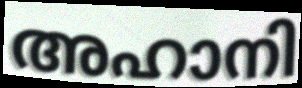
അഹാനി